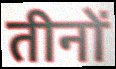
तीनों